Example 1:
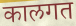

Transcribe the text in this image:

कालगत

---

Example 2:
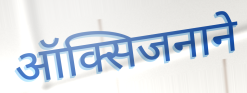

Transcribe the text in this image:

ऑक्सिजनाने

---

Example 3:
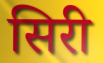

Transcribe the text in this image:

सिरी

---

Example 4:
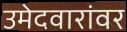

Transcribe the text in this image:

उमेदवारांवर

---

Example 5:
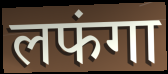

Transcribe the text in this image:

लफंगा